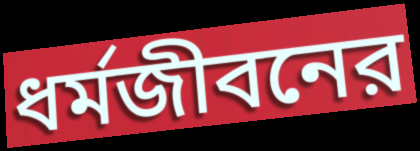
ধর্মজীবনের